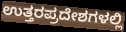
ಉತ್ತರಪ್ರದೇಶಗಳಲ್ಲಿ